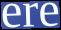
ere